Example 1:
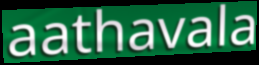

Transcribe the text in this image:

aathavala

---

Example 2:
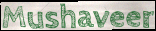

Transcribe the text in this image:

Mushaveer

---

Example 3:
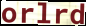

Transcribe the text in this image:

orlrd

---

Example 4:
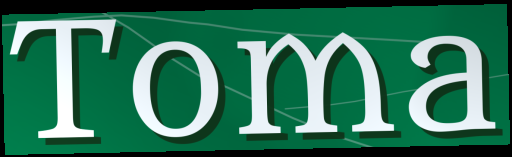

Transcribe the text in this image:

Toma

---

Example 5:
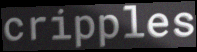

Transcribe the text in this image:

cripples